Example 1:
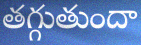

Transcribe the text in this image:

తగ్గుతుందా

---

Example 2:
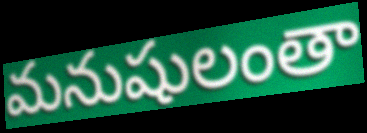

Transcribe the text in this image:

మనుషులంతా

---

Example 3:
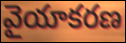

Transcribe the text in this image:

వైయాకరణ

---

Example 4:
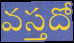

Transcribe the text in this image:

వస్తదో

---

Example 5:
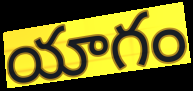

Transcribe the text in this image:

యాగం